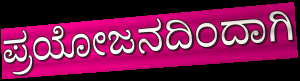
ಪ್ರಯೋಜನದಿಂದಾಗಿ